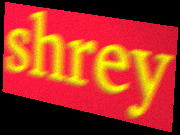
shrey